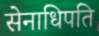
सेनाधिपति